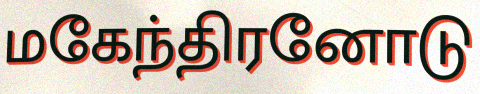
மகேந்திரனோடு